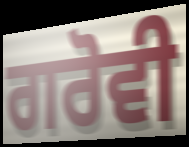
ਗਰੋਵੀ